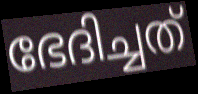
ഭേദിച്ചത്